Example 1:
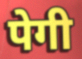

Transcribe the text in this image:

पेगी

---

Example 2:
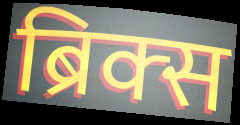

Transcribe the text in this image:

ब्रिक्‍स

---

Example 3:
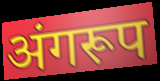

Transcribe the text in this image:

अंगरूप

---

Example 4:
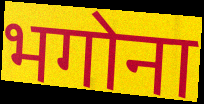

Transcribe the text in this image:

भगोना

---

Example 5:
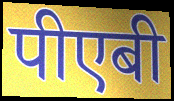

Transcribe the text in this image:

पीएबी